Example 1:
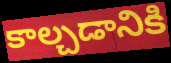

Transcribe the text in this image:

కాల్చడానికి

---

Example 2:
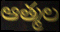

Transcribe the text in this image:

ఆత్మల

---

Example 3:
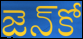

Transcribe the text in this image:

జెన్‌కో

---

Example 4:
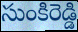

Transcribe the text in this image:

సుంకిరెడ్డి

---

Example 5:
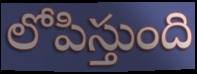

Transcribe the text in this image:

లోపిస్తుంది